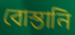
বোস্তানি